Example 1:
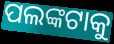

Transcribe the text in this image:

ପଲଙ୍କଟାକୁ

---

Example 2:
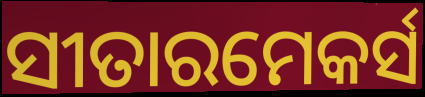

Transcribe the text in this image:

ସୀତାରମେକର୍ସ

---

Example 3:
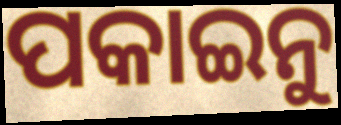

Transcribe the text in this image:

ପକାଇନୁ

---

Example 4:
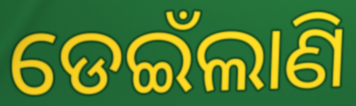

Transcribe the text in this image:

ଡେଇଁଲାଣି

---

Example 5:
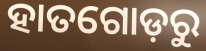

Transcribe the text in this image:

ହାତଗୋଡ଼ରୁ